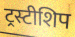
ट्रस्टीशिप